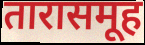
तारासमूह